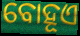
ବୋହୂଏ